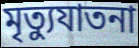
মৃত্যুযাতনা